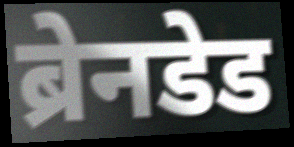
ब्रेनडेड